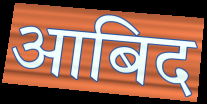
आबिद